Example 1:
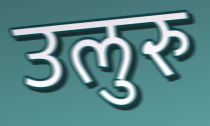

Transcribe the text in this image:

उलुरु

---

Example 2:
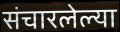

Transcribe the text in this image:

संचारलेल्या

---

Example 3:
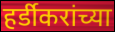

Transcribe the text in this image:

हर्डीकरांच्या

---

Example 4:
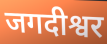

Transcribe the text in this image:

जगदीश्वर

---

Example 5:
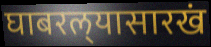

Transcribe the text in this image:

घाबरल्यासारखं